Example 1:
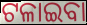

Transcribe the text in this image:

ଟଳାଇବା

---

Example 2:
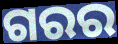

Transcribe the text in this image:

ଗରର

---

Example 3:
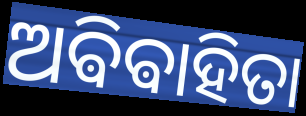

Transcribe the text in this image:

ଅଵିଵାହିତା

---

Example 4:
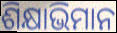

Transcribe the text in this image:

ଶିକ୍ଷାଭିମାନ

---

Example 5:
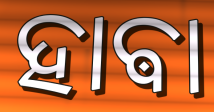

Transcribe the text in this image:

ହାଵା